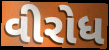
વીરોધ